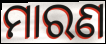
ମାରଣ